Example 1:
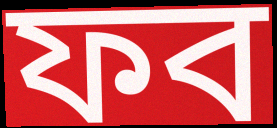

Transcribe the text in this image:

ফব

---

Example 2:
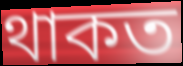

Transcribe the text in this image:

থাকত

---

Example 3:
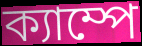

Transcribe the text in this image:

ক্যাম্পে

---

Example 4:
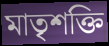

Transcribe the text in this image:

মাতৃশক্তি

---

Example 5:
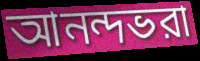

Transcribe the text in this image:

আনন্দভরা